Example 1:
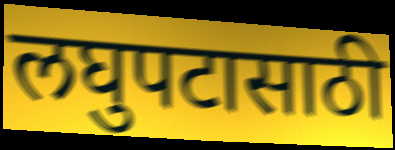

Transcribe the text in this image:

लघुपटासाठी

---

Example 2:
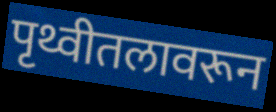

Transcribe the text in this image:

पृथ्वीतलावरून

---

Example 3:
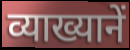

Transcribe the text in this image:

व्याख्यानें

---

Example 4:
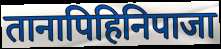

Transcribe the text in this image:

तानापिहिनिपाजा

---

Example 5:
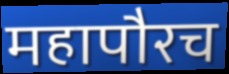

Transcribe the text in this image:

महापौरच